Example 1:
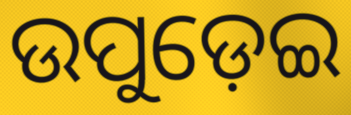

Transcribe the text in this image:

ଉପୁଡ଼େଇ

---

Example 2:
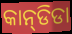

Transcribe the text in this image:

କାନ୍‌ଡିଡା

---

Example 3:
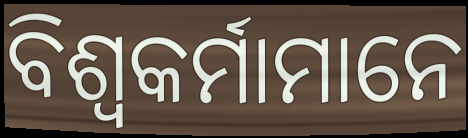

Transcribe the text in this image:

ବିଶ୍ଵକର୍ମାମାନେ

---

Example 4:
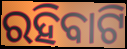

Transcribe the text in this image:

ରହିବାଟି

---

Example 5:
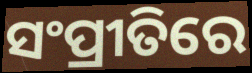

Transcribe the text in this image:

ସଂପ୍ରୀତିରେ